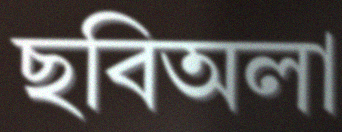
ছবিঅলা